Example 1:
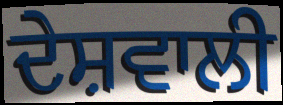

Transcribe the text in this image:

ਦੇਸ਼ਵਾਲੀ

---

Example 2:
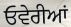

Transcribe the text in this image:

ਓਵੇਰੀਆਂ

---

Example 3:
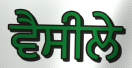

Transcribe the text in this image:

ਵੈਸੀਲੇ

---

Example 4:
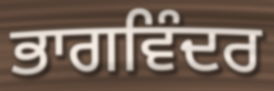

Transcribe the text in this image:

ਭਾਗਵਿੰਦਰ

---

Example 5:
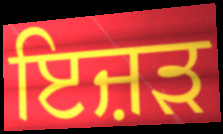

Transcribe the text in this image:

ਇਜ਼ੜ